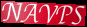
NAVPS